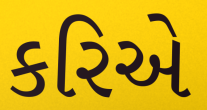
કરિએ